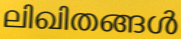
ലിഖിതങ്ങൾ